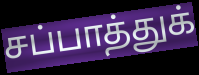
சப்பாத்துக்